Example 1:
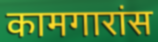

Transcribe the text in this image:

कामगारांस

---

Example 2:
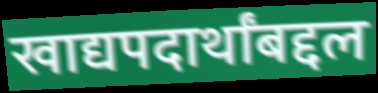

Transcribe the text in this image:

खाद्यपदार्थांबद्दल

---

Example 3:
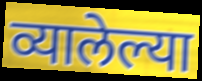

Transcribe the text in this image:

व्यालेल्या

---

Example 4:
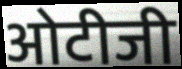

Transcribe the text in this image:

ओटीजी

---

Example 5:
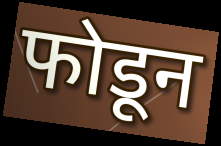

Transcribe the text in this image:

फोडून